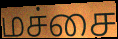
மச்சை